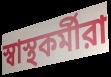
স্বাস্থকর্মীরা